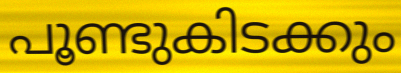
പൂണ്ടുകിടക്കും